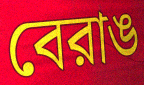
বেরাঙ